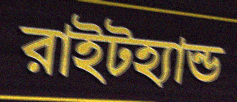
রাইটহ্যান্ড